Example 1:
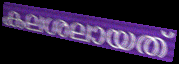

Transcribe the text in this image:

കലശലായത്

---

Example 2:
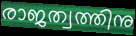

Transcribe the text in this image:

രാജത്വത്തിനു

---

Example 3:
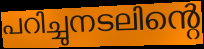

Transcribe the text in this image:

പറിച്ചുനടലിന്റെ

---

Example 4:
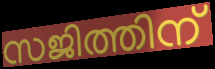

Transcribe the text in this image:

സജിത്തിന്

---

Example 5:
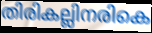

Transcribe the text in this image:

തിരികല്ലിനരികെ